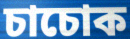
চাচোক